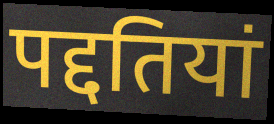
पद्दतियां